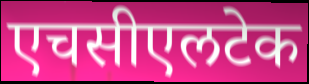
एचसीएलटेक